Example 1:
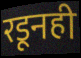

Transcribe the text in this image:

रडूनही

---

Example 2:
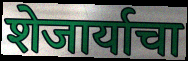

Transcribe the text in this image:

शेजार्याचा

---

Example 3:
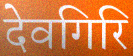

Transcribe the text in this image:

देवगिरि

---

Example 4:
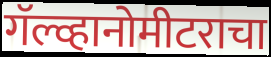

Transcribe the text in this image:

गॅल्व्हानोमीटराचा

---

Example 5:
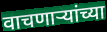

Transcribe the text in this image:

वाचणार्‍यांच्या